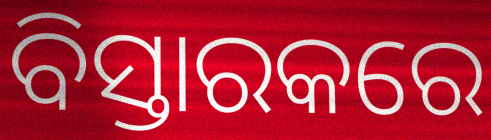
ବିସ୍ତାରକରେ